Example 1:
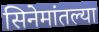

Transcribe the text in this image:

सिनेमांतल्या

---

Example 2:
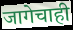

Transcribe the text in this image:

जागेचाही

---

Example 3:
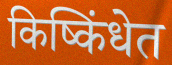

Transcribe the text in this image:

किष्किंधेत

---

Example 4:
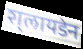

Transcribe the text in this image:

श्लायडेन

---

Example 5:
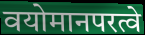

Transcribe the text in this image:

वयोमानपरत्वे